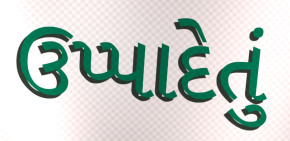
ઉપ્પાદેતું